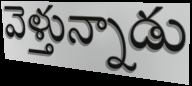
వెళ్తున్నాడు